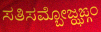
ಸತಿಸಮ್ಬೋಜ್ಝಙ್ಗಂ